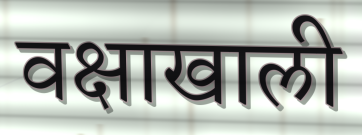
वक्षाखाली